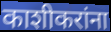
काशीकरांना